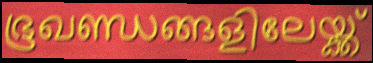
ഭൂഖണ്ഡങ്ങളിലേയ്ക്ക്